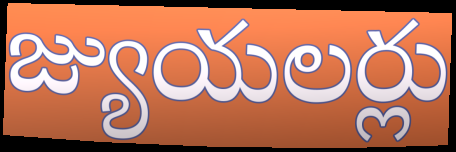
జ్యుయలర్లు